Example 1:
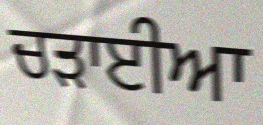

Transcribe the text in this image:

ਚੜਾਈਆ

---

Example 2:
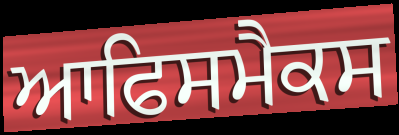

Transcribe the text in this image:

ਆਫਿਸਮੈਕਸ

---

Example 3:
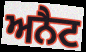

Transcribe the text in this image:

ਅਨੈਟ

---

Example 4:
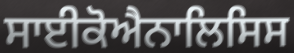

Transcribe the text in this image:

ਸਾਈਕੋਐਨਾਲਿਸਿਸ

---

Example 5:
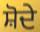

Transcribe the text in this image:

ਸ਼ੋਦੇ